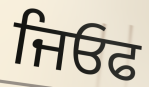
ਜਿਓਫ